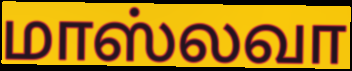
மாஸ்லவா